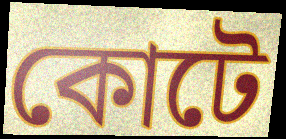
কোটে